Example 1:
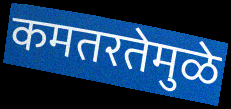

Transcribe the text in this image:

कमतरतेमुळे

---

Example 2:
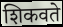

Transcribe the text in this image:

शिकवते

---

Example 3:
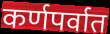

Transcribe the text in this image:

कर्णपर्वात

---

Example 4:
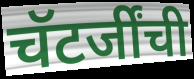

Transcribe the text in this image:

चॅटर्जींची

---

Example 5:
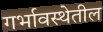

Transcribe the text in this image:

गर्भावस्थेतील